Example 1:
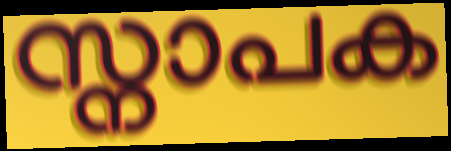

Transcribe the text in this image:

സ്നാപക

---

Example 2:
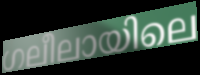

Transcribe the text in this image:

ഗലീലായിലെ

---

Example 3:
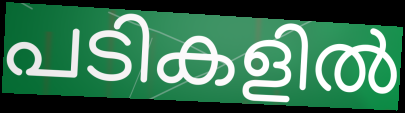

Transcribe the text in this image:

പടികളിൽ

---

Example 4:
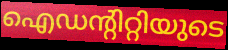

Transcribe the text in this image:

ഐഡന്റിറ്റിയുടെ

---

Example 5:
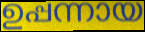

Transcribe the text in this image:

ഉപ്പന്നായ